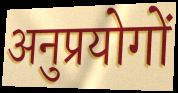
अनुप्रयोगों